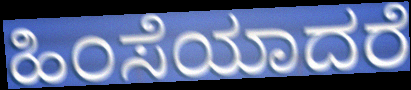
ಹಿಂಸೆಯಾದರೆ